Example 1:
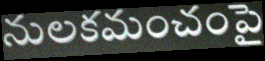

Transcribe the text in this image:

నులకమంచంపై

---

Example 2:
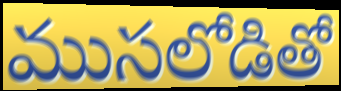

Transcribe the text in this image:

ముసలోడితో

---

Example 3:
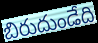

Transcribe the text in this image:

బిరుదుండేది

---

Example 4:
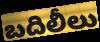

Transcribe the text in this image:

బదిలీలు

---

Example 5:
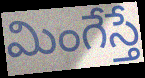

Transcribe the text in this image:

మింగేస్తే